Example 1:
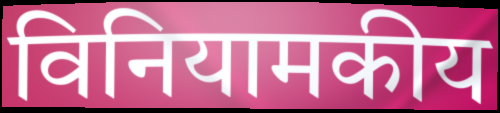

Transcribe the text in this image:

विनियामकीय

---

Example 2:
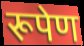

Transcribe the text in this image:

रूपेण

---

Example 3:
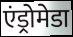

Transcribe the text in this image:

एंड्रोमेडा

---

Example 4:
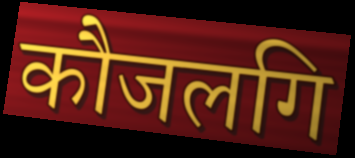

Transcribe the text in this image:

कौजलगि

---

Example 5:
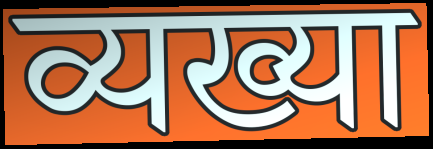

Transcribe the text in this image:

व्यख्या